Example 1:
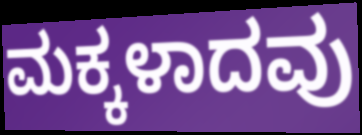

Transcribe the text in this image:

ಮಕ್ಕಳಾದವು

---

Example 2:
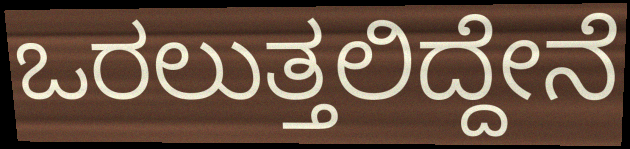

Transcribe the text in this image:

ಒರಲುತ್ತಲಿದ್ದೇನೆ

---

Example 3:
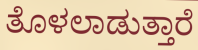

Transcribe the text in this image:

ತೊಳಲಾಡುತ್ತಾರೆ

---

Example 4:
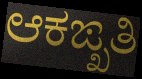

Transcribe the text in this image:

ಆಕಙ್ಖತಿ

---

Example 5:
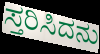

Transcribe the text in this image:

ಸ್ತರಿಸಿದನು